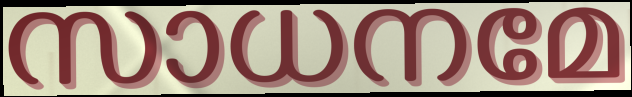
സാധനമേ